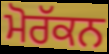
ਮੋਰੱਕਨ